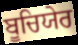
ਬੂਚਿਯੇਰ